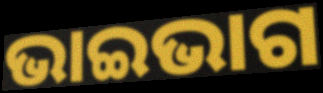
ଭାଇଭାଗ